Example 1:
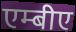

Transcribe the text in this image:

एम्बीए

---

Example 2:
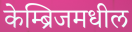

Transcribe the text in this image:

केम्ब्रिजमधील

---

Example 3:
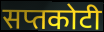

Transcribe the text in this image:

सप्तकोटी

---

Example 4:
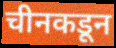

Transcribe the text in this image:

चीनकडून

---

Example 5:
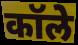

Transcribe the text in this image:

कॉले